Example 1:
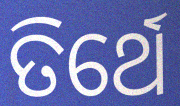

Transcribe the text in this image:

ତିର୍ଥେ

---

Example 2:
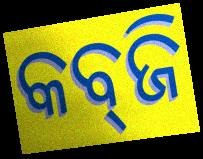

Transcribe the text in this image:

କବ୍‍ଜି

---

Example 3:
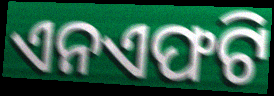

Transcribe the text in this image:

ଏନଏଫଟି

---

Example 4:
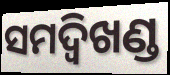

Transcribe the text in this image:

ସମଦ୍ବିଖଣ୍ଡ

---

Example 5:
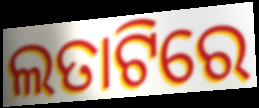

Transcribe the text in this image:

ଲତାଟିରେ